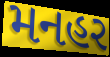
મનહર